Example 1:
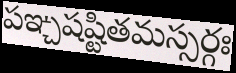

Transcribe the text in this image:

పఞ్చషష్టితమస్సర్గః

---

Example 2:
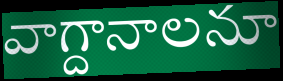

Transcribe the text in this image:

వాగ్దానాలనూ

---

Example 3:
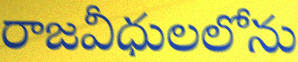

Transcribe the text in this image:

రాజవీధులలోను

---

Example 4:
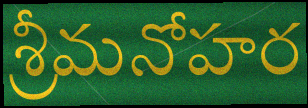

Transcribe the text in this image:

శ్రీమనోహర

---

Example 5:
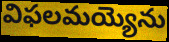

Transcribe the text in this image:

విఫలమయ్యెను